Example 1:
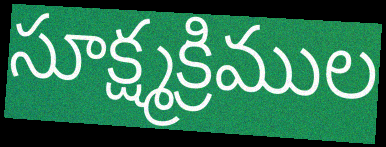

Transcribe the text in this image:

సూక్ష్మక్రిముల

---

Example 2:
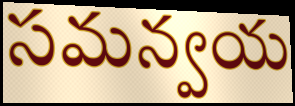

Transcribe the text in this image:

సమన్వయ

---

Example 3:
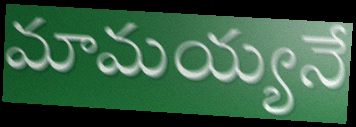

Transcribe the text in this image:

మామయ్యనే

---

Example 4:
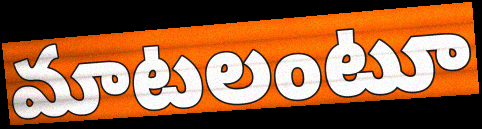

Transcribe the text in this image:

మాటలంటూ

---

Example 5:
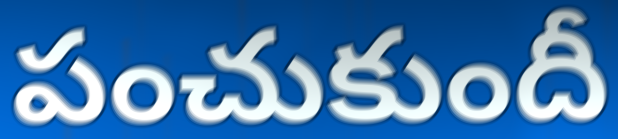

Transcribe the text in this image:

పంచుకుందీ